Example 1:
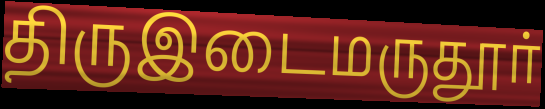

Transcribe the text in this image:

திருஇடைமருதூர்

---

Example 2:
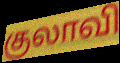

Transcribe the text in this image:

குலாவி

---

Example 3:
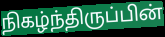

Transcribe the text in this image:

நிகழ்ந்திருப்பின்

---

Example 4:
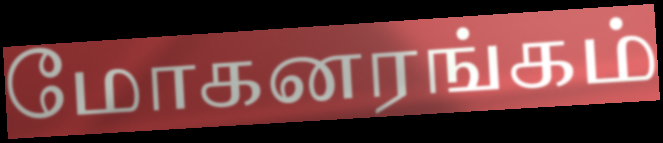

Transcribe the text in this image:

மோகனரங்கம்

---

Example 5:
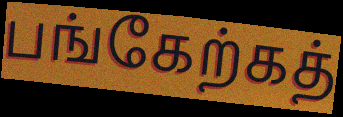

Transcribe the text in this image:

பங்கேற்கத்